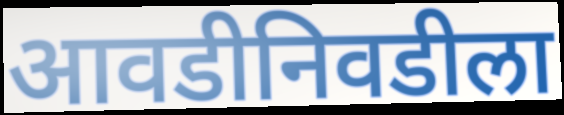
आवडीनिवडीला